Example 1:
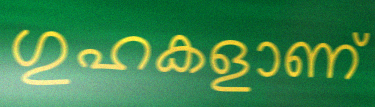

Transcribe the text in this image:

ഗുഹകളാണ്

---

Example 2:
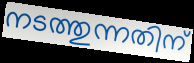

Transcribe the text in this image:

നടത്തുന്നതിന്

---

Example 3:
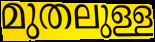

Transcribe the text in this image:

മുതലുള്ള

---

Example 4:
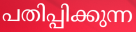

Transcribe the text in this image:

പതിപ്പിക്കുന്ന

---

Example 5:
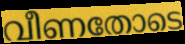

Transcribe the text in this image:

വീണതോടെ